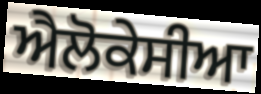
ਐਲੋਕੇਸੀਆ